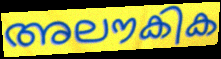
അലൗകിക